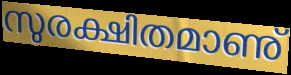
സുരക്ഷിതമാണു്